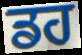
ਡਹ